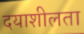
दयाशीलता